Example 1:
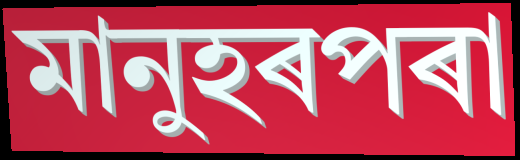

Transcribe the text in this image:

মানুহৰপৰা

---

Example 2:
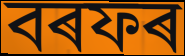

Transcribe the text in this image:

বৰফৰ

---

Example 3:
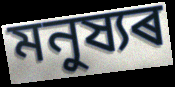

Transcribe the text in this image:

মনুষ্যৰ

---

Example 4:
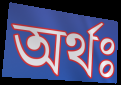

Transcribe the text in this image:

অৰ্থঃ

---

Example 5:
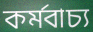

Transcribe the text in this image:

কৰ্মবাচ্য